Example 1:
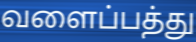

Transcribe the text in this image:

வளைப்பத்து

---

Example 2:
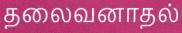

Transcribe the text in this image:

தலைவனாதல்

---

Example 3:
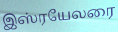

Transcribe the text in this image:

இஸ்ரயேலரை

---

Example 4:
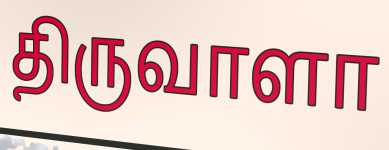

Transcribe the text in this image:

திருவாளா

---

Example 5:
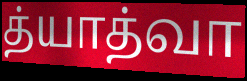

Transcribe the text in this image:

த்யாத்வா